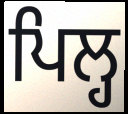
ਪਿਲ੍ਹ